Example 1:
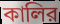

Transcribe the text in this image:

কালির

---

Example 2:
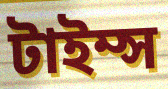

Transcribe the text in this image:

টাইম্স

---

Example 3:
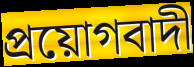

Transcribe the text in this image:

প্রয়োগবাদী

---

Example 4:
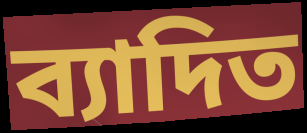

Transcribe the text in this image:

ব্যাদিত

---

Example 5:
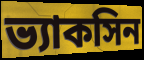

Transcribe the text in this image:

ভ্যাকসিন